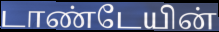
டாண்டேயின்